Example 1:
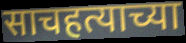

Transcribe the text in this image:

साचहत्याच्या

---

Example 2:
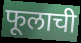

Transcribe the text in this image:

फूलाची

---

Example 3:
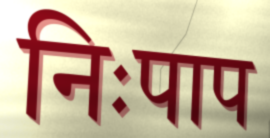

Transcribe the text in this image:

निःपाप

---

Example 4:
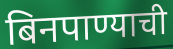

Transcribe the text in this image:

बिनपाण्याची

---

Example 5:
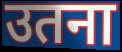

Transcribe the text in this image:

उतना